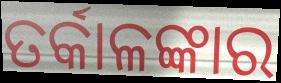
ତର୍କାଳଙ୍କାର